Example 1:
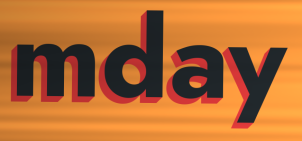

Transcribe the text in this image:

mday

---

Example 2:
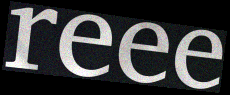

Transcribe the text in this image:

reee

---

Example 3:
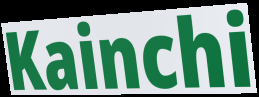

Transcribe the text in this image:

Kainchi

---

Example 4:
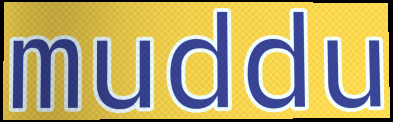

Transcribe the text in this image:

muddu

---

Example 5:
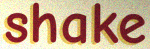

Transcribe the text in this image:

shake